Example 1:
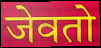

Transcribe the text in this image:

जेवतो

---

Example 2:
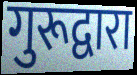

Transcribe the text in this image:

गुरूद्वारा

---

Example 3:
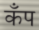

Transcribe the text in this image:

कॅंप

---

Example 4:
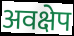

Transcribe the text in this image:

अवक्षेप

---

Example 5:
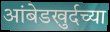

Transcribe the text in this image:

आंबेडखुर्दच्या